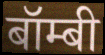
बॉम्बी